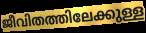
ജീവിതത്തിലേക്കുള്ള